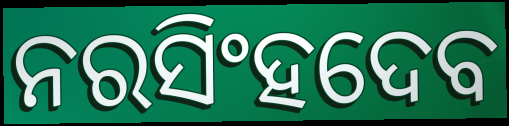
ନରସିଂହଦେବ